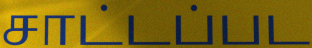
சாட்டப்பட